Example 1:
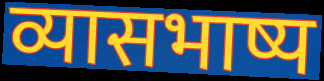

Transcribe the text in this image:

व्यासभाष्य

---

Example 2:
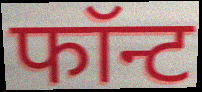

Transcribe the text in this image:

फॉन्ट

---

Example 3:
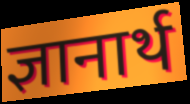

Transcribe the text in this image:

ज्ञानार्थ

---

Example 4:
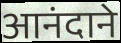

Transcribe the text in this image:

आनंदाने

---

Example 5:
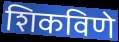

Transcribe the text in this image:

शिकविणे